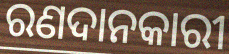
ରଣଦାନକାରୀ